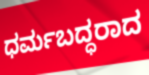
ಧರ್ಮಬದ್ಧರಾದ